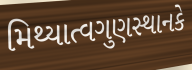
મિથ્યાત્વગુણસ્થાનકે